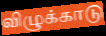
விழுக்காடு